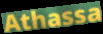
Athassa